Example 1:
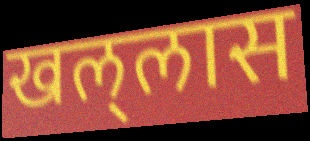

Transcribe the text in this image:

खल्लास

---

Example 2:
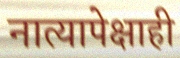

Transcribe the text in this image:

नात्यापेक्षाही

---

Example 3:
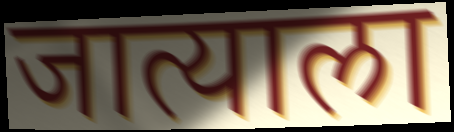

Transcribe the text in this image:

जात्याला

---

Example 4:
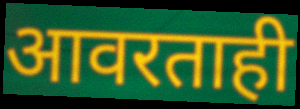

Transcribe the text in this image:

आवरताही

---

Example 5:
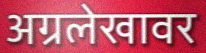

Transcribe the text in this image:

अग्रलेखावर